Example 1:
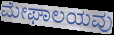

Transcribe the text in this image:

ಮೇಘಾಲಯವು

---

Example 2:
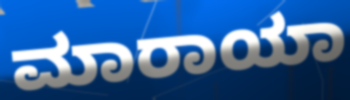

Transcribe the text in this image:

ಮಾರಾಯಾ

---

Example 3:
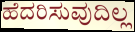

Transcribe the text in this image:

ಹೆದರಿಸುವುದಿಲ್ಲ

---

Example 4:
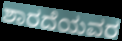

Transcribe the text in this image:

ಶಾರದೆಯವರ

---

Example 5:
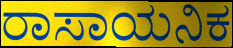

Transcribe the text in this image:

ರಾಸಾಯನಿಕ